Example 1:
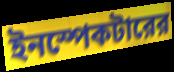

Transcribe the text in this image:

ইনস্পেকটারের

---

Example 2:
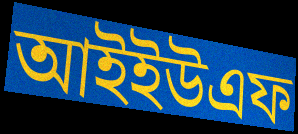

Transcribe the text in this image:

আইইউএফ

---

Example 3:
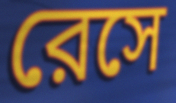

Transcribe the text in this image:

রেসে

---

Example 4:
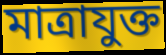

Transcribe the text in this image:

মাত্রাযুক্ত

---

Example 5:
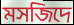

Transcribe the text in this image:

মসজিদে